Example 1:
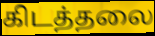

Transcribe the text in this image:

கிடத்தலை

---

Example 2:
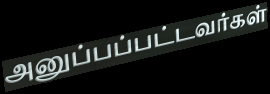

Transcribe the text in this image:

அனுப்பப்பட்டவர்கள்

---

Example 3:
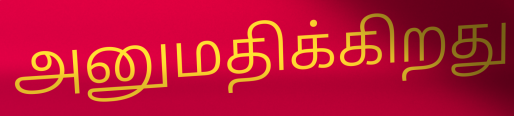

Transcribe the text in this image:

அனுமதிக்கிறது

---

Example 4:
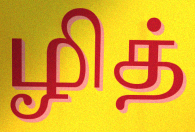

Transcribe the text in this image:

ழித்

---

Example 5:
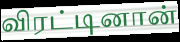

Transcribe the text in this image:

விரட்டினான்